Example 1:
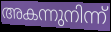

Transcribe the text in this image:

അകന്നുനിന്ന്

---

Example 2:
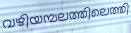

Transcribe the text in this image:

വഴിയമ്പലത്തിലെത്തി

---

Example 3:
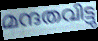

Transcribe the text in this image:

മന്ദതവിട്ടു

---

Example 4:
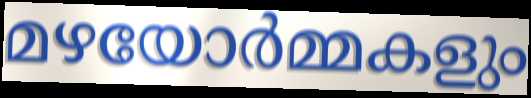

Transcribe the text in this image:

മഴയോർമ്മകളും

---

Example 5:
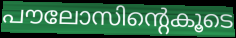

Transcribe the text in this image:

പൗലോസിന്റെകൂടെ